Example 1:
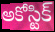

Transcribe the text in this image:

అకోస్టిక్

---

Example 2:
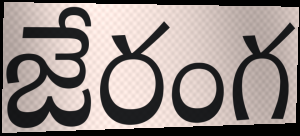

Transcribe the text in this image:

జేరంగ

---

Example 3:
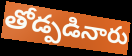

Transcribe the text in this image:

తోడ్పడినారు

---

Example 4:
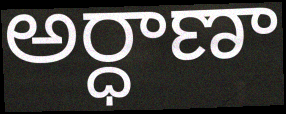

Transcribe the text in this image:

అర్ధాణా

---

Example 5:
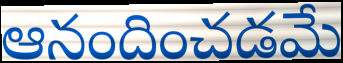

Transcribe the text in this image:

ఆనందించడమే